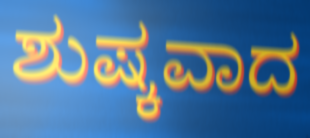
ಶುಷ್ಕವಾದ